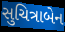
સુચિત્રાબેન